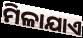
ମିଳାଯାଏ